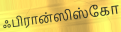
ஃபிரான்ஸிஸ்கோ